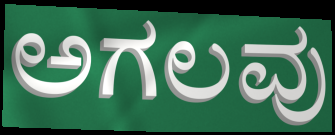
ಅಗಲವು